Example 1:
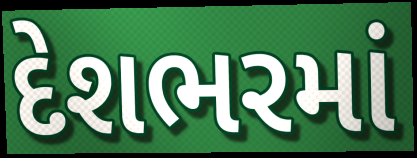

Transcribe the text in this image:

દેશભરમાં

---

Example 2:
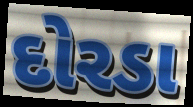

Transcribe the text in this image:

દોરડા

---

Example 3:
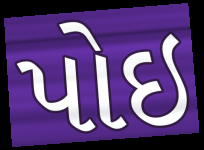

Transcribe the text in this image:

પોઇ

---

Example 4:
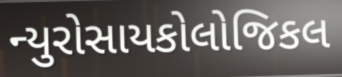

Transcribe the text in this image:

ન્યુરોસાયકોલોજિકલ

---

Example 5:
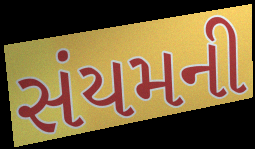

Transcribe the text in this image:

સંયમની